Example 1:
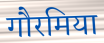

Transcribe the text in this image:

गौरमिया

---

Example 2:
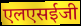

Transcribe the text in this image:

एलएसईजी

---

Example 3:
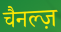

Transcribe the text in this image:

चैनल्ज़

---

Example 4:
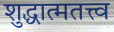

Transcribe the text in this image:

शुद्धात्मतत्त्व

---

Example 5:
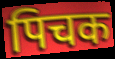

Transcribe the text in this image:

पिचक